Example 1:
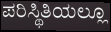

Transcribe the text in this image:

ಪರಿಸ್ಥಿತಿಯಲ್ಲೂ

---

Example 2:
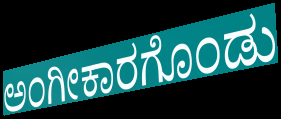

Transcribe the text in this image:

ಅಂಗೀಕಾರಗೊಂಡು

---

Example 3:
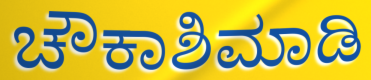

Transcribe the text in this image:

ಚೌಕಾಶಿಮಾಡಿ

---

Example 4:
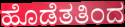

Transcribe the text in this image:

ಹೊಡೆತತಿಂದ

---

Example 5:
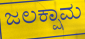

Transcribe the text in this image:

ಜಲಕ್ಷಾಮ